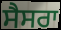
ਸੈਸਰਾ